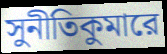
সুনীতিকুমারে